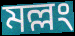
মল্লং